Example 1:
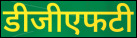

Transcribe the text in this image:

डीजीएफटी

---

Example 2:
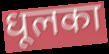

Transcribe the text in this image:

धूलका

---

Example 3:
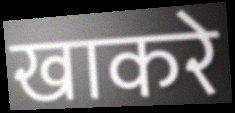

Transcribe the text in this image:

खाकरे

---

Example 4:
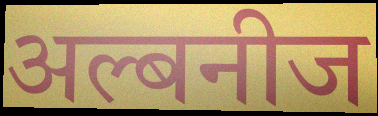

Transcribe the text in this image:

अल्‍बनीज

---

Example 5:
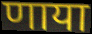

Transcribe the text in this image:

णाया